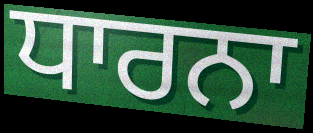
ਧਾਰਨਾ